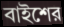
বাইশের